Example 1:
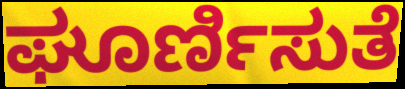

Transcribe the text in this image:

ಘೂರ್ಣಿಸುತೆ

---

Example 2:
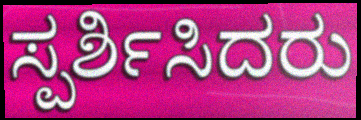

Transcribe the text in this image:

ಸ್ಪರ್ಶಿಸಿದರು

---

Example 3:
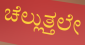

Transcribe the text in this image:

ಚೆಲ್ಲುತ್ತಲೇ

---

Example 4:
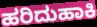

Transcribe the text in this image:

ಹರಿದುಹಾಕಿ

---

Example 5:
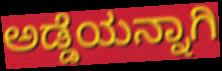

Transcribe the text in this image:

ಅಡ್ಡೆಯನ್ನಾಗಿ